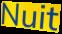
Nuit